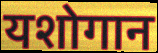
यशोगान